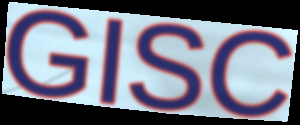
GISC